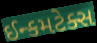
ઈન્કમટેક્સ